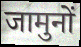
जामुनों